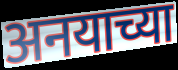
अनयाच्या